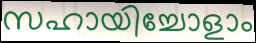
സഹായിച്ചോളാം